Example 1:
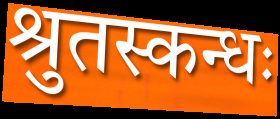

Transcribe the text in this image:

श्रुतस्कन्धः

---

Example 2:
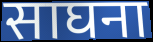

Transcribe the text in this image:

साघना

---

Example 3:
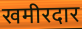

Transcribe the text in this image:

खमीरदार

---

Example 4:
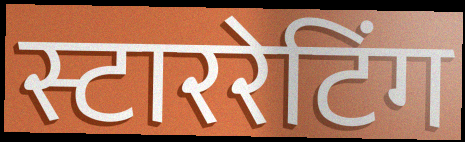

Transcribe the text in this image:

स्टाररेटिंग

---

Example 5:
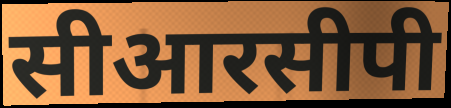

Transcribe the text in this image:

सीआरसीपी